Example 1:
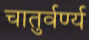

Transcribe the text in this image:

चातुर्वर्ण्य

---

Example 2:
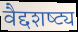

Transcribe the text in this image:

वैद्दशष्ट्य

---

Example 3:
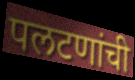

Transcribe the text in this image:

पलटणांची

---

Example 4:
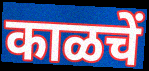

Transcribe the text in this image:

काळचें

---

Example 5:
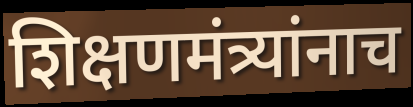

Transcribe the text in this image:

शिक्षणमंत्र्यांनाच